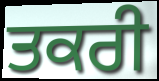
ਤਕਰੀ